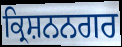
ਕ੍ਰਿਸ਼ਨਨਗਰ